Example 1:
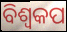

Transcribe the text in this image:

ବିଶ୍ୱକପ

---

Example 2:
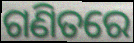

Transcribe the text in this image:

ଗଣିତରେ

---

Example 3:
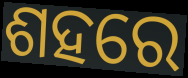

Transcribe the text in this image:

ଶହରେ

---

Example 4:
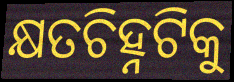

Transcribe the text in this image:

କ୍ଷତଚିହ୍ନଟିକୁ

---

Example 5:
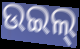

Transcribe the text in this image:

ଉଇଲ୍